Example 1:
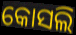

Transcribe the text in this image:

କୋସଲି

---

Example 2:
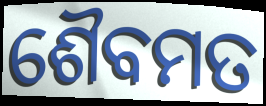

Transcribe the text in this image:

ଶୈବମତ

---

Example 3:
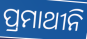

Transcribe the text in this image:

ପ୍ରମାଥୀନି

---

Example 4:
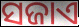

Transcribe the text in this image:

ସଜାଏ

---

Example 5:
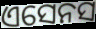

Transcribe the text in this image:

ଏସେନସ